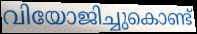
വിയോജിച്ചുകൊണ്ട്